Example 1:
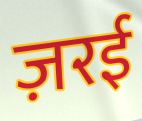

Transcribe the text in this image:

ज़रई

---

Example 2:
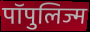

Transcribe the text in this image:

पॉपुलिज्म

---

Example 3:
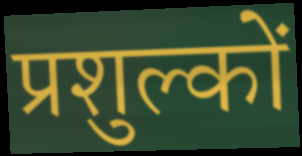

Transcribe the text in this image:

प्रशुल्कों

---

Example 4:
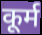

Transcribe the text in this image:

कूर्म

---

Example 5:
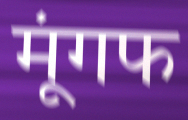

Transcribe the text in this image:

मूंगफ